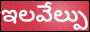
ఇలవేల్పు